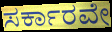
ಸರ್ಕಾರವೇ